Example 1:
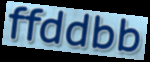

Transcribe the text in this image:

ffddbb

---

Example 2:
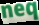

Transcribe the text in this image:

neq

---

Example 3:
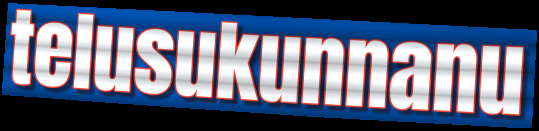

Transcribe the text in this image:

telusukunnanu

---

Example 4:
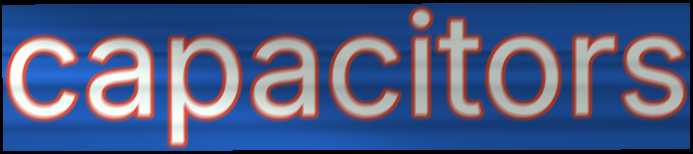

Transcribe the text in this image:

capacitors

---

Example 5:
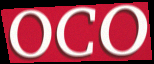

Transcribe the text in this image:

OCO